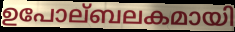
ഉപോല്ബലകമായി